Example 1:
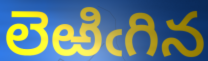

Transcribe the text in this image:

లెఱిఁగిన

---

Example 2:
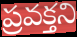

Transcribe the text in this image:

ప్రవక్తని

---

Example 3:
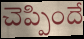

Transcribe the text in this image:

చెప్పిందే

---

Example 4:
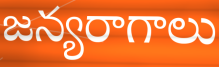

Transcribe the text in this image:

జన్యరాగాలు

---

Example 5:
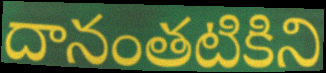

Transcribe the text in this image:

దానంతటికిని